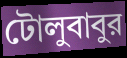
টোলুবাবুর